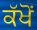
ਕੱਖੋਂ